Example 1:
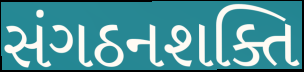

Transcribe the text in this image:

સંગઠનશક્તિ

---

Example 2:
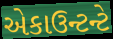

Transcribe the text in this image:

એકાઉન્ટન્ટે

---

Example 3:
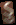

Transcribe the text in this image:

ડુ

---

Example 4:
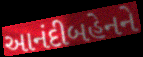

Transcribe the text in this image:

આનંદીબહેનને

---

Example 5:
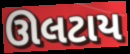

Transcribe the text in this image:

ઊલટાય